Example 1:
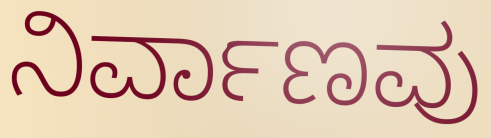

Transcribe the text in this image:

ನಿರ್ವಾಣವು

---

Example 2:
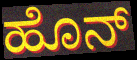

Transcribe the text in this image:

ಹೊನ್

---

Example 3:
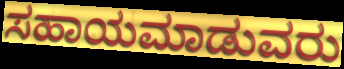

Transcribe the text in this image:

ಸಹಾಯಮಾಡುವರು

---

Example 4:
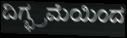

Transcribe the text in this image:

ದಿಗ್ಭ್ರಮೆಯಿಂದ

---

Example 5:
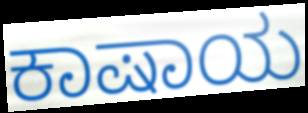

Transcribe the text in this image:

ಕಾಷಾಯ